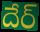
దేర్